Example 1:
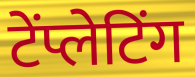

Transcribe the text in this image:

टेंप्लेटिंग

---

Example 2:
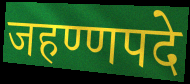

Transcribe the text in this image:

जहण्णपदे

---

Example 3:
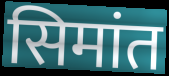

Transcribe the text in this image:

सिमांत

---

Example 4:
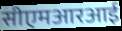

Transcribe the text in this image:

सीएमआरआई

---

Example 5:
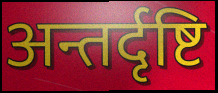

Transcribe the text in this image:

अन्तर्दृष्टि